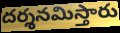
దర్శనమిస్తారు